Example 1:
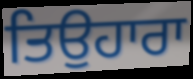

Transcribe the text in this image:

ਤਿਉਹਾਰਾ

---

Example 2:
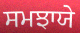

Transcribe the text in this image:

ਸਮਝਾਯੇ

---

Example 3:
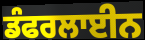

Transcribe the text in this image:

ਡੰਫਰਲਾਈਨ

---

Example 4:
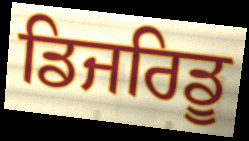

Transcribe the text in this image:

ਡਿਜਰਿਡੂ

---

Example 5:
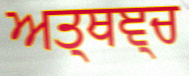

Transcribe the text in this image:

ਅਤ੍ਥਞ੍ਚ